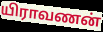
யிராவணன்